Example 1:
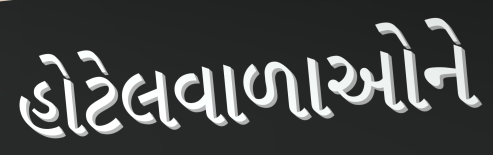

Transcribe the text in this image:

હોટેલવાળાઓને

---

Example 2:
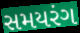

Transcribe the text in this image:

સમયરંગ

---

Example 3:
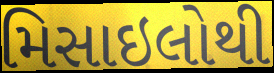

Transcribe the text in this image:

મિસાઇલોથી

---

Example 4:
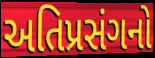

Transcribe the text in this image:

અતિપ્રસંગનો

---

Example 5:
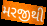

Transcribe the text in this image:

મરજીથી